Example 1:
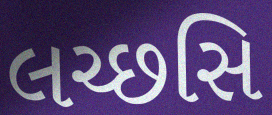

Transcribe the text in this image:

લચ્છસિ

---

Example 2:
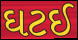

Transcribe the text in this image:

ઘટઈ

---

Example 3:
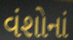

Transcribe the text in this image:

વંશોનાં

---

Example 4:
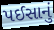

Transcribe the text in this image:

પઈસાનું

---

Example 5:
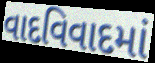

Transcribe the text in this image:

વાદવિવાદમાં